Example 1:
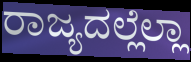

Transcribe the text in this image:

ರಾಜ್ಯದಲ್ಲೆಲ್ಲಾ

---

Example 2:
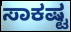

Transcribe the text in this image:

ಸಾಕಷ್ಟ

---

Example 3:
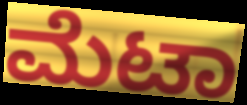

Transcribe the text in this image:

ಮೆಟಾ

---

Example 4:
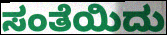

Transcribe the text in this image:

ಸಂತೆಯಿದು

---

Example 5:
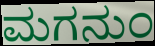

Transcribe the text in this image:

ಮಗನುಂ